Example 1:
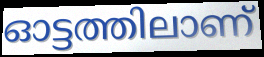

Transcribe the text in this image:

ഓട്ടത്തിലാണ്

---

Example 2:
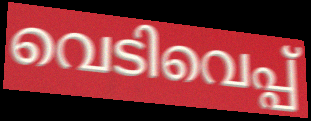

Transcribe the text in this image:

വെടിവെപ്പ്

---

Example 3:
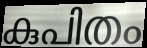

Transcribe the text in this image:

കുപിതം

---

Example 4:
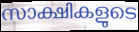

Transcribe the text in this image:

സാക്ഷികളുടെ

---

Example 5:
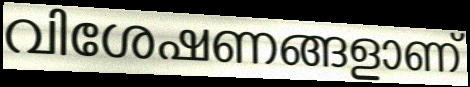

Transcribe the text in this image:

വിശേഷണങ്ങളാണ്